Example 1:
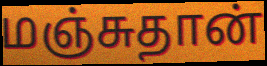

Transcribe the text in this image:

மஞ்சுதான்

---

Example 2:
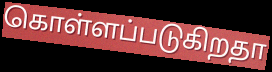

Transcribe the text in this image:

கொள்ளப்படுகிறதா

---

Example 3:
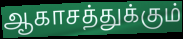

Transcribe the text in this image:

ஆகாசத்துக்கும்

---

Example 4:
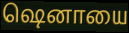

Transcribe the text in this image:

ஷெனாயை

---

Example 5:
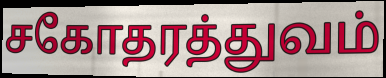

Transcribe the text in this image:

சகோதரத்துவம்